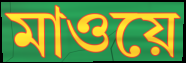
মাওয়ে